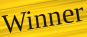
Winner